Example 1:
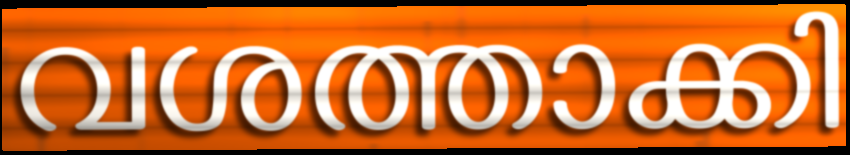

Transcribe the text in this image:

വശത്താക്കി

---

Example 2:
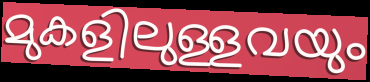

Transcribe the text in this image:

മുകളിലുള്ളവയും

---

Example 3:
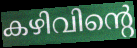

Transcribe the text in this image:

കഴിവിന്റെ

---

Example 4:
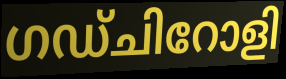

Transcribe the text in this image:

ഗഡ്ചിറോളി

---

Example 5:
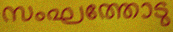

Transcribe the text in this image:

സംഘത്തോടു